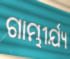
ଗାମ୍ଭୀର୍ଯ୍ୟ